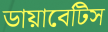
ডায়াবেটিস